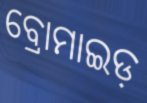
ବ୍ରୋମାଇଡ଼